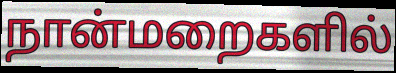
நான்மறைகளில்